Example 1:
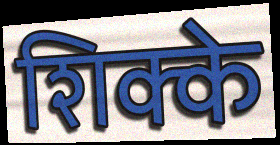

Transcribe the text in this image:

शिक्के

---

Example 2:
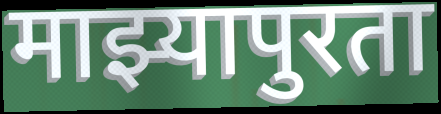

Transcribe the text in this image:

माझ्यापुरता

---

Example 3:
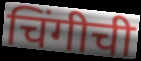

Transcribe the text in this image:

चिंगीची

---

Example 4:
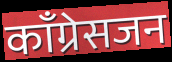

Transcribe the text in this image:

काँग्रेसजन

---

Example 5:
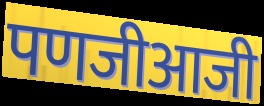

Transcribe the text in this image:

पणजीआजी